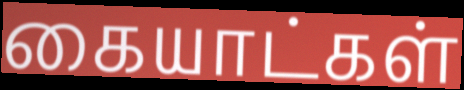
கையாட்கள்